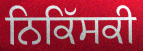
ਨਿਕਿੱਸਕੀ